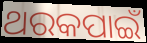
ଥରକପାଇଁ